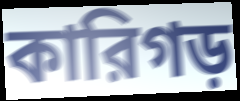
কারিগড়